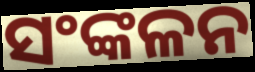
ସଂଙ୍କଳନ